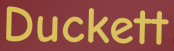
Duckett